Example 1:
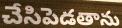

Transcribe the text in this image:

చేసిపెడతాను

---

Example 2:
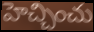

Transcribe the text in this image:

హెచ్చించు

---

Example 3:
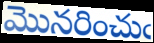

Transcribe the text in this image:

మొనరించుఁ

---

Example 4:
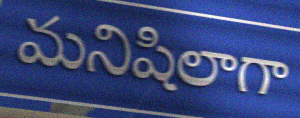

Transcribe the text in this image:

మనిషిలాగా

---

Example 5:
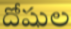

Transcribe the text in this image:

దోషుల